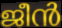
ജീൻ